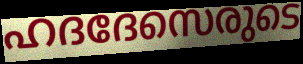
ഹദദേസെരുടെ